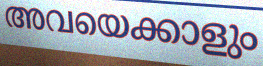
അവയെക്കാളും